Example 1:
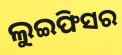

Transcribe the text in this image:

ଲୁଇଫିସର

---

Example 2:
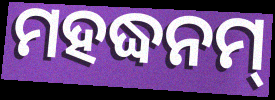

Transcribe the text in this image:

ମହଦ୍ଧନମ୍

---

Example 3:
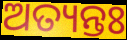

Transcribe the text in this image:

ଅତ୍ୟନ୍ତଃ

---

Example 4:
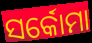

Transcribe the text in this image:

ସର୍କୋମା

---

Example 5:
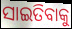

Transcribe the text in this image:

ସାଇତିବାକୁ